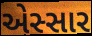
એસ્સાર